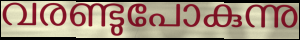
വരണ്ടുപോകുന്നു